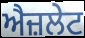
ਐਜ਼ਲੇਟ